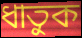
ধাতুক